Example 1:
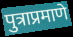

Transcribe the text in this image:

पुत्राप्रमाणे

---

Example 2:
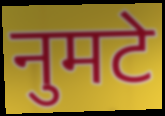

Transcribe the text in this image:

नुमटे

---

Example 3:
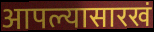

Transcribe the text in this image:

आपल्यासारखं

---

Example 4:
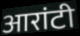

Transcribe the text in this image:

आरांटी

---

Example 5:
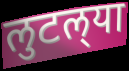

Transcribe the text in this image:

लुटल्या